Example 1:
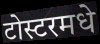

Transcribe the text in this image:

टोस्टरमधे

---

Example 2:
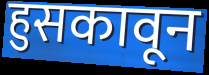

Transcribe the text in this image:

हुसकावून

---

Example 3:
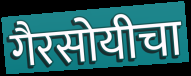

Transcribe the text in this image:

गैरसोयीचा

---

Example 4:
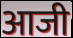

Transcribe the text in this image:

आजी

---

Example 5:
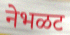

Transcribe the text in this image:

नेभळट